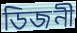
ডিজনী